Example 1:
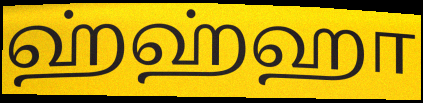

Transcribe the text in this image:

ஹ்ஹ்ஹா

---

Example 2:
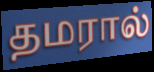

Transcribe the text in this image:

தமரால்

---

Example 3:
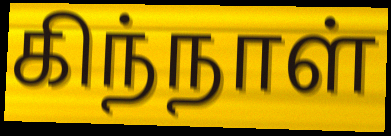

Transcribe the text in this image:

கிந்நாள்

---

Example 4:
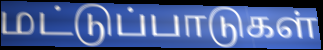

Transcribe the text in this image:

மட்டுப்பாடுகள்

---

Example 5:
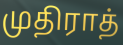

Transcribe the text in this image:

முதிராத்